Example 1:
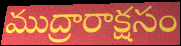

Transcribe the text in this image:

ముద్రారాక్షసం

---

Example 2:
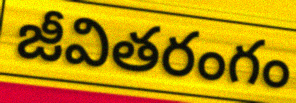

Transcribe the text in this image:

జీవితరంగం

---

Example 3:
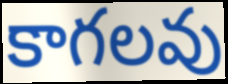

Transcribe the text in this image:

కాగలవు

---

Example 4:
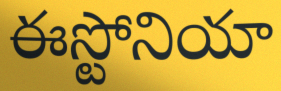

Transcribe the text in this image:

ఈస్టోనియా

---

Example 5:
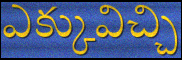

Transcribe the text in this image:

ఎక్కువిచ్చి